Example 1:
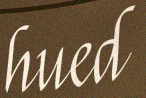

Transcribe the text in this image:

hued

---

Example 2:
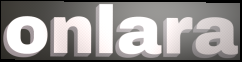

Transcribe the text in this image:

onlara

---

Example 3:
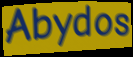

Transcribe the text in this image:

Abydos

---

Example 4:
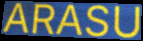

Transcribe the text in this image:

ARASU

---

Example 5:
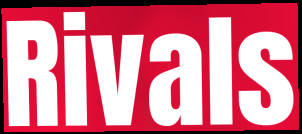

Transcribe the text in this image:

Rivals